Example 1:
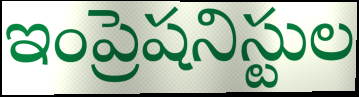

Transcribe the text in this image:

ఇంప్రెషనిస్టుల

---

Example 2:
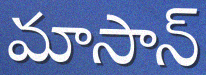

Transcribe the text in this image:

మాసాన్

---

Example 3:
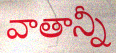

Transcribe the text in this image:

వాతాన్నీ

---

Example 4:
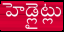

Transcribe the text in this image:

హెడ్లైట్లు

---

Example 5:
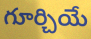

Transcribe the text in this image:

గూర్చియే